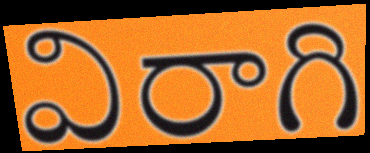
విరాగి